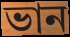
ভান